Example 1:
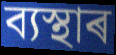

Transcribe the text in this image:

ব্যস্থাৰ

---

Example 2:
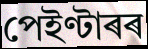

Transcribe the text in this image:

পেইণ্টাৰৰ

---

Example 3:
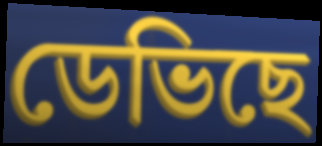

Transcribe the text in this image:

ডেভিছে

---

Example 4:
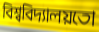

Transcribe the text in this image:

বিশ্ববিদ্যালয়তো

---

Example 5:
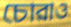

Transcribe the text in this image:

চোৱাও